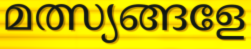
മത്സ്യങ്ങളേ